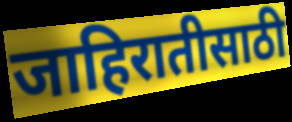
जाहिरातीसाठी